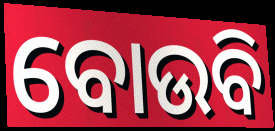
ବୋଉବି